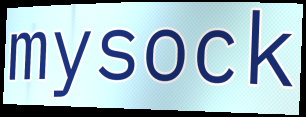
mysock